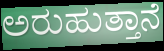
ಅರುಹುತ್ತಾನೆ